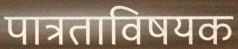
पात्रताविषयक